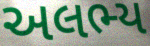
અલભ્ય